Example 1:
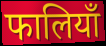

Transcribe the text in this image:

फालियाँ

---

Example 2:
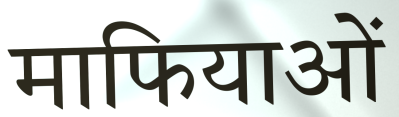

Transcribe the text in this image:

माफियाओं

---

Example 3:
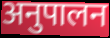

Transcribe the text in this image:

अनुपालन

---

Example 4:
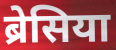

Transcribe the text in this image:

ब्रेसिया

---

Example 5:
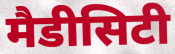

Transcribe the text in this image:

मैडीसिटी